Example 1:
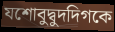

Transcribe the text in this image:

যশোবুদ্বুদদিগকে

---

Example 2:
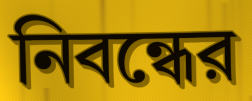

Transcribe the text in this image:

নিবন্ধের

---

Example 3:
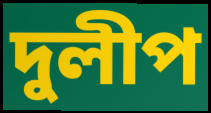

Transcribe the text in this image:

দুলীপ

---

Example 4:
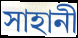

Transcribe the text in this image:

সাহানী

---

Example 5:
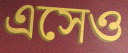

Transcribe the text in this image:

এসেও